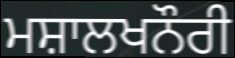
ਮਸ਼ਾਲਖਨੌਰੀ